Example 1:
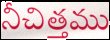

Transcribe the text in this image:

నీచిత్తము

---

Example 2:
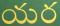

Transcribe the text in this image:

యర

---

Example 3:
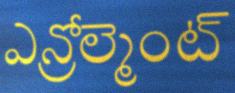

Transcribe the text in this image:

ఎన్రోల్మెంట్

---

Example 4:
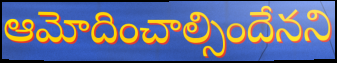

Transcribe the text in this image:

ఆమోదించాల్సిందేనని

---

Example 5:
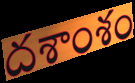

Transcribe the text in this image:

దశాంశం